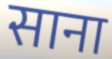
साना